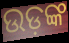
ଉଡ଼ଙ୍କ